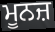
ਮੂਨਜ਼